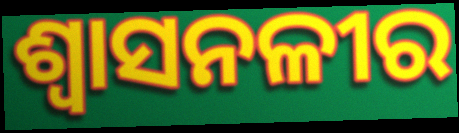
ଶ୍ୱାସନଳୀର